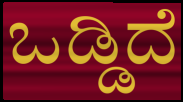
ಒಡ್ಡಿದೆ